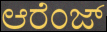
ಆರೆಂಜ್